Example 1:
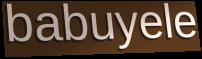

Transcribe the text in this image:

babuyele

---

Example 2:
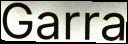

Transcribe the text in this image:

Garra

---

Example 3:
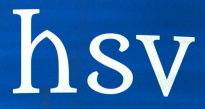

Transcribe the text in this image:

hsv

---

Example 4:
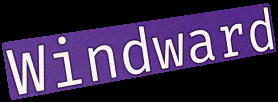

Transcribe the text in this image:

Windward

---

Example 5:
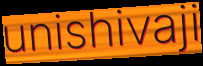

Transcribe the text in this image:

unishivaji